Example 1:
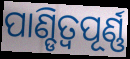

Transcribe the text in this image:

ପାଣ୍ଡିତ୍ୱପୂର୍ଣ୍ଣ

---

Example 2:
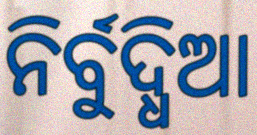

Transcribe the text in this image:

ନିର୍ବୁଦ୍ଧିଆ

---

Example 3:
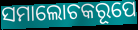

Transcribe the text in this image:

ସମାଲୋଚକରୂପେ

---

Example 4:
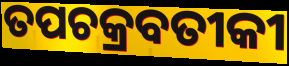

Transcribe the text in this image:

ତପଚକ୍ରବତୀକୀ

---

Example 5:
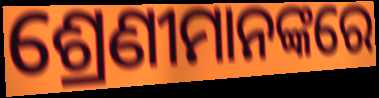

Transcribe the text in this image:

ଶ୍ରେଣୀମାନଙ୍କରେ